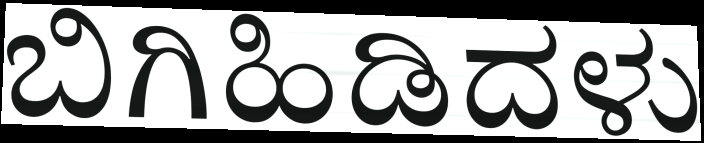
ಬಿಗಿಹಿಡಿದಳು